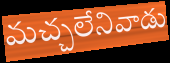
మచ్చలేనివాడు